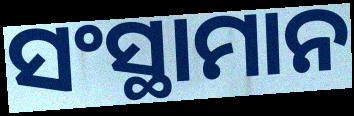
ସଂସ୍ଥାମାନ